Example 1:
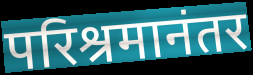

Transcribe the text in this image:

परिश्रमानंतर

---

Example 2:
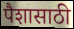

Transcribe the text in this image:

पैशासाठी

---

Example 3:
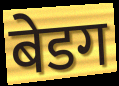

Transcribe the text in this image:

बेडग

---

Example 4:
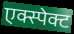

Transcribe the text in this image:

एक्स्पेक्ट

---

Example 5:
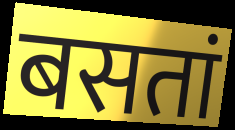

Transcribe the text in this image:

बसतां